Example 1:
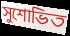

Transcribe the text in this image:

সুশোভিত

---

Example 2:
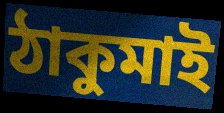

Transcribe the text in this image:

ঠাকুমাই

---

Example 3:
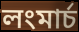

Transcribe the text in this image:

লংমার্চ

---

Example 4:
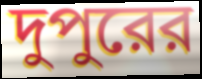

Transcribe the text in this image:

দুপুরের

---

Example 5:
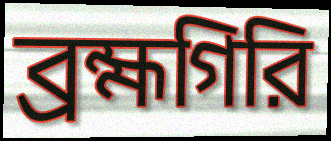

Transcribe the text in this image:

ব্রহ্মগিরি